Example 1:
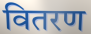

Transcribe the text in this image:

वितरण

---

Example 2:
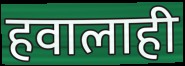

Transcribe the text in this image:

हवालाही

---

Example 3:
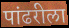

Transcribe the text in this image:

पांढरीला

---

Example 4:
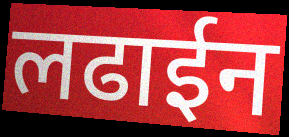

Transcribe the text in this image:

लढाईन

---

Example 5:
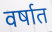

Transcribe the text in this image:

वर्षात